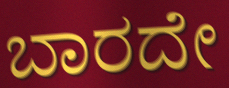
ಬಾರದೇ